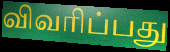
விவரிப்பது